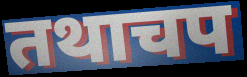
तथाचप